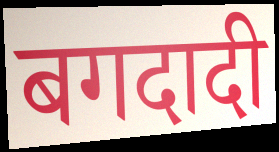
बगदादी